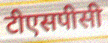
टीएसपीसी